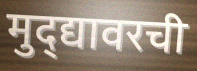
मुद्द्यावरची